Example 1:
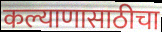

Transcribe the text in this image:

कल्याणासाठीचा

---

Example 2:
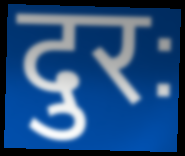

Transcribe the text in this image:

दुरः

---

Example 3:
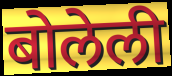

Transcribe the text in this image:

बोलेली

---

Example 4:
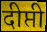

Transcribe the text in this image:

दीप्ती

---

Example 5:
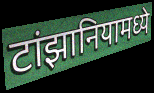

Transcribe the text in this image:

टांझानियामध्ये